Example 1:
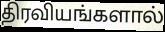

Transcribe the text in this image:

திரவியங்களால்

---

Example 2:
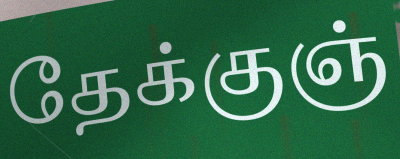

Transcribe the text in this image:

தேக்குஞ்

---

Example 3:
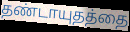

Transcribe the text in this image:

தண்டாயுதத்தை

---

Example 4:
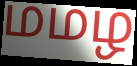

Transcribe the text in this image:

மமழ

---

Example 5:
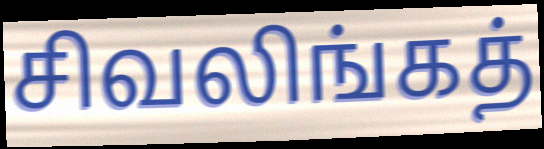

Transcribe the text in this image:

சிவலிங்கத்